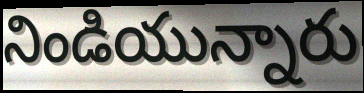
నిండియున్నారు